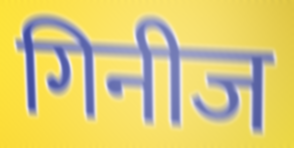
गिनीज